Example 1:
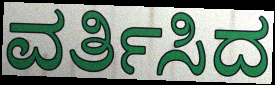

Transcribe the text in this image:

ವರ್ತಿಸಿದ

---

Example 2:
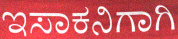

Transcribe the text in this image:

ಇಸಾಕನಿಗಾಗಿ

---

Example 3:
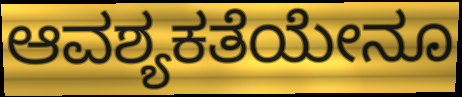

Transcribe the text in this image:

ಆವಶ್ಯಕತೆಯೇನೂ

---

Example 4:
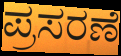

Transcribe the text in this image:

ಪ್ರಸರಣೆ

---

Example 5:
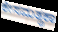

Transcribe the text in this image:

ಕೇಸಮತ್ಥಕಾ